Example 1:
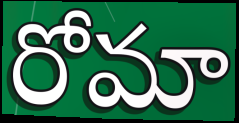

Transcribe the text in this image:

రోమా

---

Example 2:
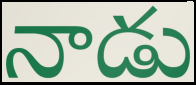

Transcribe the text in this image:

నాడు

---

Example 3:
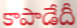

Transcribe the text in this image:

కాపాడేదీ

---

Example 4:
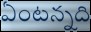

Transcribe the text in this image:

ఏంటన్నది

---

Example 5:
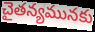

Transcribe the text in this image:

చైతన్యమునకు